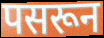
पसरून